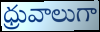
ధ్రువాలుగా